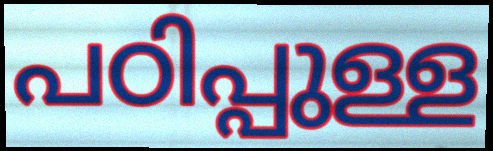
പഠിപ്പുള്ള